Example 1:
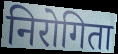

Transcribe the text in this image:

निरोगिता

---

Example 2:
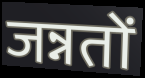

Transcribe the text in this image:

जन्नतों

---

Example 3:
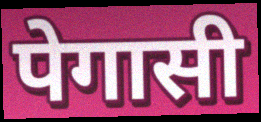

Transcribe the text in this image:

पेगासी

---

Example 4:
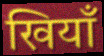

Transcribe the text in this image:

खियाँ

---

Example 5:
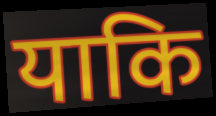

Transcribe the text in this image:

याकि